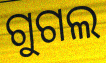
ଗୁଗଲ